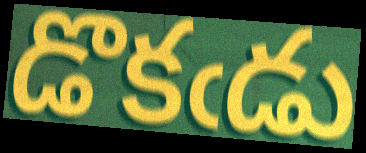
డొకఁడు